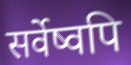
सर्वेष्वपि